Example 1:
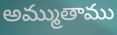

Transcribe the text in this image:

అమ్ముతాము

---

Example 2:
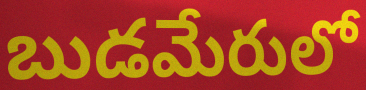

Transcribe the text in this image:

బుడమేరులో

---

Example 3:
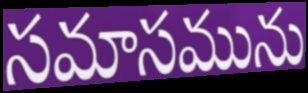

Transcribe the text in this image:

సమాసమును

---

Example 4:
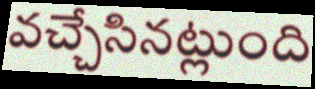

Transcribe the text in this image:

వచ్చేసినట్లుంది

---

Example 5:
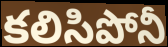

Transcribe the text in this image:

కలిసిపోనీ